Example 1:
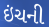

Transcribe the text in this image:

ઇંચની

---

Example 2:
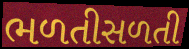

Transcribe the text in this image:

ભળતીસળતી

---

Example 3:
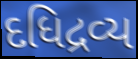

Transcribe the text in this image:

દધિદ્રવ્ય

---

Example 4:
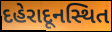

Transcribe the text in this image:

દહેરાદૂનસ્થિત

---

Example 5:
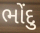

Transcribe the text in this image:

ભોંદુ